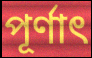
পূর্ণাৎ